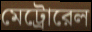
মেট্রোরেল